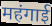
महंगाई